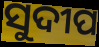
ସୁଦୀପ